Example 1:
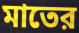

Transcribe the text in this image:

মাতের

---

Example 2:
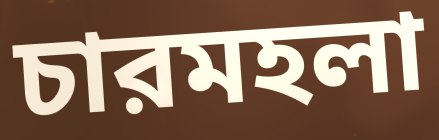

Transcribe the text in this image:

চারমহলা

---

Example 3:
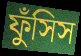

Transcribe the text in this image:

ফুঁসিস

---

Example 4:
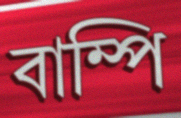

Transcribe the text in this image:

বাম্পি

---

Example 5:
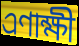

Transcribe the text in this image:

এণাক্ষী